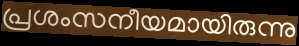
പ്രശംസനീയമായിരുന്നു